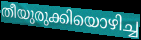
തീയുരുക്കിയൊഴിച്ച